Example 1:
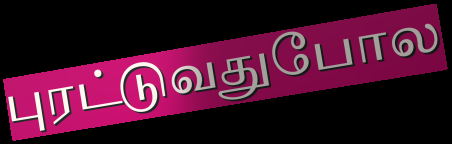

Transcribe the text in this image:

புரட்டுவதுபோல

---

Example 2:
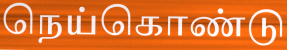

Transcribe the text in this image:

நெய்கொண்டு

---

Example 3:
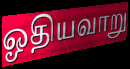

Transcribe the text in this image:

ஓதியவாறு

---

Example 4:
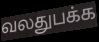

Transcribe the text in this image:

வலதுபக்க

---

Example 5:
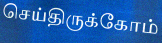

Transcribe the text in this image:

செய்திருக்கோம்